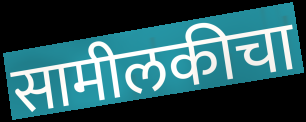
सामीलकीचा